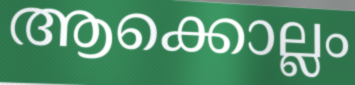
ആക്കൊല്ലം